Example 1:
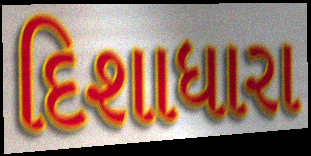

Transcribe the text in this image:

દિશાધારા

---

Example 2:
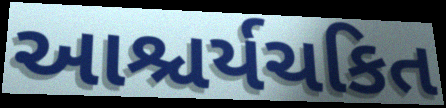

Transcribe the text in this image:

આશ્ચર્યચકિત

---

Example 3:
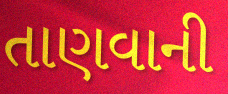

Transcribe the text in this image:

તાણવાની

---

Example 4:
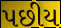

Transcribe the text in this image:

પછીય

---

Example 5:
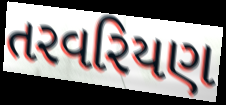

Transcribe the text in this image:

તરવરિયણ